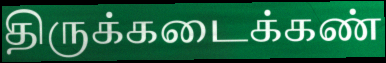
திருக்கடைக்கண்